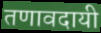
तणावदायी